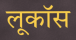
लूकॉस